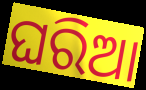
ଘରିଆ